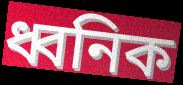
ধ্বনিক